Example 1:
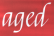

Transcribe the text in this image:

aged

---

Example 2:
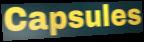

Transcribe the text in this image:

Capsules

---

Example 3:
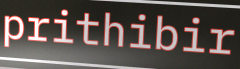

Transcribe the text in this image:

prithibir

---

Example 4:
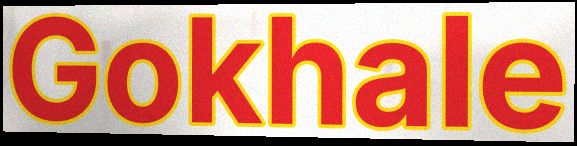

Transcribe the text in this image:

Gokhale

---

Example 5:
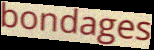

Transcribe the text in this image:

bondages